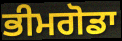
ਭੀਮਗੋਡਾ